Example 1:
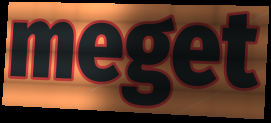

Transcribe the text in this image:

meget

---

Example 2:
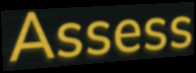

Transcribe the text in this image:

Assess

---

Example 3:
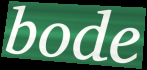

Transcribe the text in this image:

bode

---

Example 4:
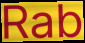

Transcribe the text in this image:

Rab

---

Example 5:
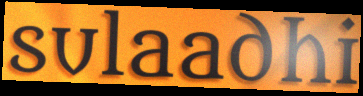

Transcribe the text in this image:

sulaadhi